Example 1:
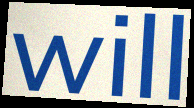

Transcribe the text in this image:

will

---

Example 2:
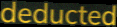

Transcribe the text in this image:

deducted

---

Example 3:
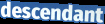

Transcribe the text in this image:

descendant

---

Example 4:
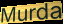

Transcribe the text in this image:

Murda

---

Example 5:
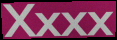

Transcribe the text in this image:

Xxxx